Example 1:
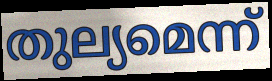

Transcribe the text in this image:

തുല്യമെന്ന്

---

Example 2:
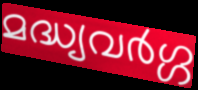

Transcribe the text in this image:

മദ്ധ്യവർഗ്ഗ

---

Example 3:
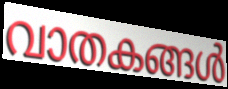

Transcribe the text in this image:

വാതകങ്ങൾ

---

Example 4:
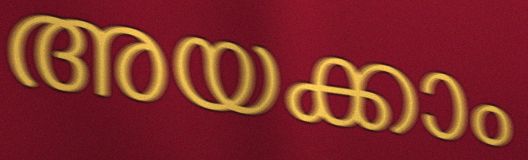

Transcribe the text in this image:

അയക്കാം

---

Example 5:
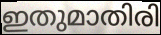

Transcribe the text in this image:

ഇതുമാതിരി